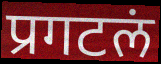
प्रगटलं